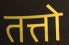
तत्तो